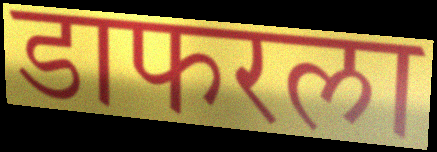
डाफरला